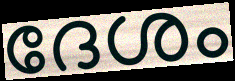
ദേശം